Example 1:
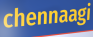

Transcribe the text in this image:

chennaagi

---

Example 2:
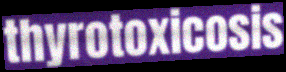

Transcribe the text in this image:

thyrotoxicosis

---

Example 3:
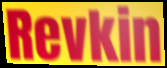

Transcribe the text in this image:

Revkin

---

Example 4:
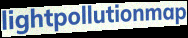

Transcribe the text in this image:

lightpollutionmap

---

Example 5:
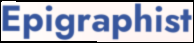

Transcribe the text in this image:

Epigraphist